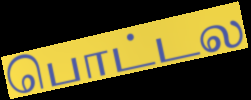
பொட்டல